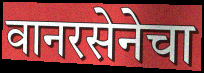
वानरसेनेचा